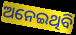
ଅନେଇଥିବି